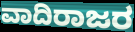
ವಾದಿರಾಜರ